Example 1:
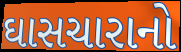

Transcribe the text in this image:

ઘાસચારાનો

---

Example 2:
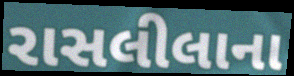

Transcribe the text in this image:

રાસલીલાના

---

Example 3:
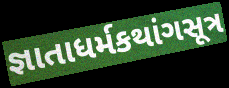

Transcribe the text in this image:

જ્ઞાતાધર્મકથાંગસૂત્ર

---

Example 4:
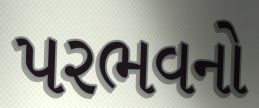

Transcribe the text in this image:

પરભવનો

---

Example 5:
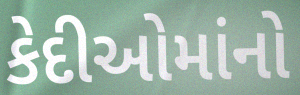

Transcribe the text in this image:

કેદીઓમાંનો